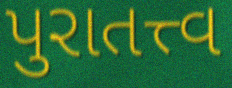
પુરાતત્ત્વ